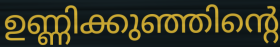
ഉണ്ണിക്കുഞ്ഞിന്റെ